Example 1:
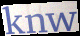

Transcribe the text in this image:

knw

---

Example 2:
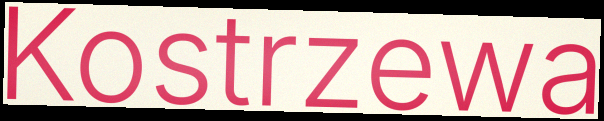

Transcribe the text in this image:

Kostrzewa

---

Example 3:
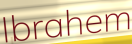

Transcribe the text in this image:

Ibrahem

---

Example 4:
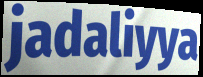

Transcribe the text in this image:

jadaliyya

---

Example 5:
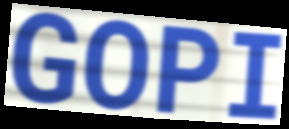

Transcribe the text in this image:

GOPI